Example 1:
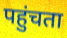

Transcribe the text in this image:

पहुंचता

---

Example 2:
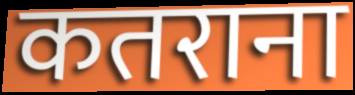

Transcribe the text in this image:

कतराना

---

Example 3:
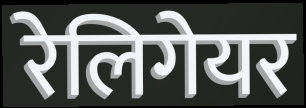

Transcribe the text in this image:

रेलिगेयर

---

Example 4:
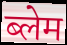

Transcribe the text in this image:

ब्लेम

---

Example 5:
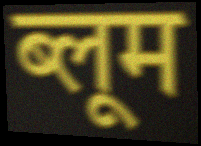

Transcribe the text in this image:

ब्लूम